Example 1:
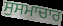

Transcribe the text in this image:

ਸੁਸਮਾਚਾਰ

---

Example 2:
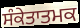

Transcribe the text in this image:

ਸੰਕੇਤਾਤਮਕ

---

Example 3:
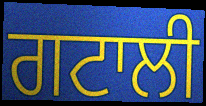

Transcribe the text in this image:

ਗਟਾਲੀ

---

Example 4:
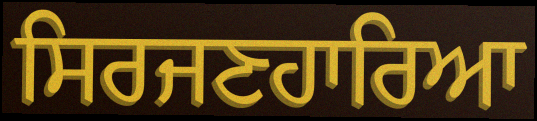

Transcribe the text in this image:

ਸਿਰਜਣਹਾਰਿਆ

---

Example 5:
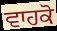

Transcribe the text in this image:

ਵਾਹਕੋ